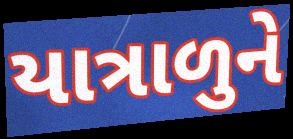
યાત્રાળુને